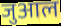
जुआल